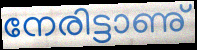
നേരിട്ടാണു്